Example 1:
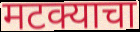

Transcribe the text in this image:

मटक्याचा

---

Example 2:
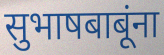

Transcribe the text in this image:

सुभाषबाबूंना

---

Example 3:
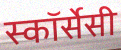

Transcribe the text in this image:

स्कॉर्सेसी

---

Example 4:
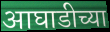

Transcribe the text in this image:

आघाडीच्या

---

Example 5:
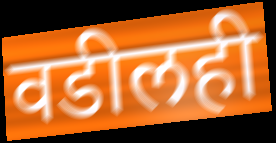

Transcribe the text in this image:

वडीलही